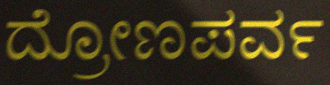
ದ್ರೋಣಪರ್ವ